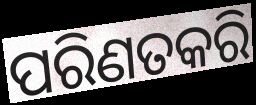
ପରିଣତକରି